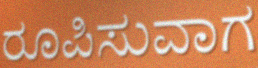
ರೂಪಿಸುವಾಗ